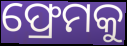
ଫ୍ରେମକୁ